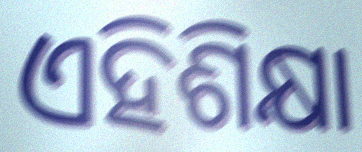
ଏହିଶିକ୍ଷା